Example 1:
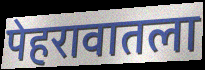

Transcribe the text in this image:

पेहरावातला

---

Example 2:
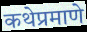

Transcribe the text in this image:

कथेप्रमाणे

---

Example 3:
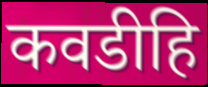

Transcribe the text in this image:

कवडीहि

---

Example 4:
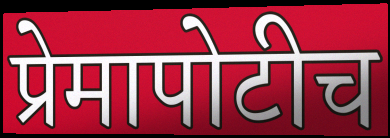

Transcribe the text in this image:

प्रेमापोटीच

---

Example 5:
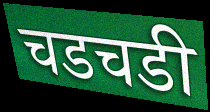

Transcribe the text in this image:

चडचडी